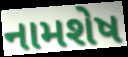
નામશેષ